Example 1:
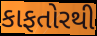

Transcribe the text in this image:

કાફતોરથી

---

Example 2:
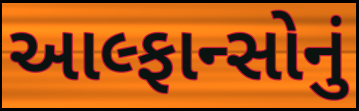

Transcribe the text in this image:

આલ્ફાન્સોનું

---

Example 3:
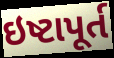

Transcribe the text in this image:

ઇષ્ટાપૂર્ત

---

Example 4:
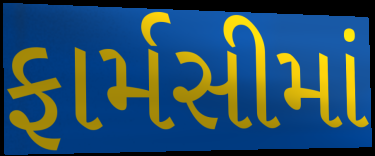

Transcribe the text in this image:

ફાર્મસીમાં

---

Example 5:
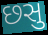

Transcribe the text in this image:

છસુ